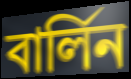
বার্লিন